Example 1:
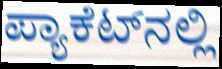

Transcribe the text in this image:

ಪ್ಯಾಕೆಟ್‍ನಲ್ಲಿ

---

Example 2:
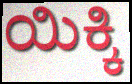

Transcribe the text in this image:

ಯಿಕ್ಕಿ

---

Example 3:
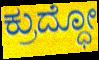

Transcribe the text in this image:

ಕ್ರುದ್ಧೋ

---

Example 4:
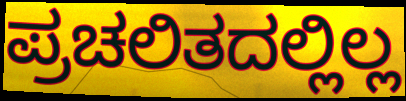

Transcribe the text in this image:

ಪ್ರಚಲಿತದಲ್ಲಿಲ್ಲ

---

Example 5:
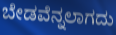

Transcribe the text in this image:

ಬೇಡವೆನ್ನಲಾಗದು